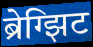
ब्रेग्झिट